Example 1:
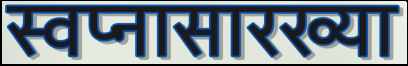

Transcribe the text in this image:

स्वप्नासारख्या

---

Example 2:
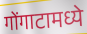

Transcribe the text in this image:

गोंगाटामध्ये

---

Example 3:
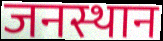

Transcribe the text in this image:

जनस्थान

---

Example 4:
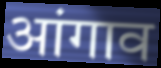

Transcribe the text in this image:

आंगाव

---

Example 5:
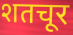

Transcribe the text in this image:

शतचूर